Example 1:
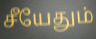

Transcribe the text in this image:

சீயேதும்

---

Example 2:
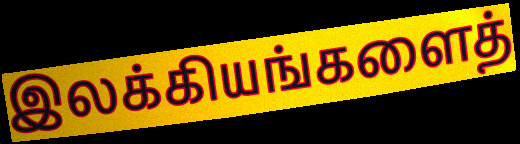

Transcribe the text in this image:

இலக்கியங்களைத்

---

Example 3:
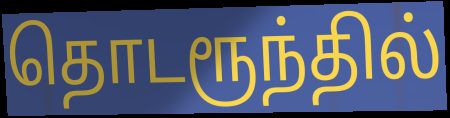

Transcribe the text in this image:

தொடரூந்தில்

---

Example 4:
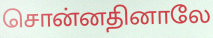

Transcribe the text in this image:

சொன்னதினாலே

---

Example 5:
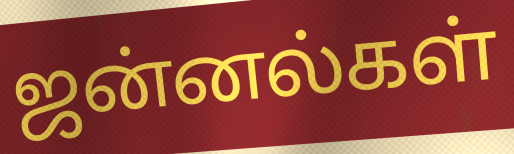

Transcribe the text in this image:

ஜன்னல்கள்